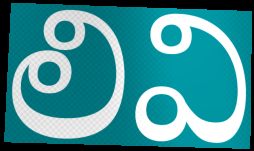
లివి